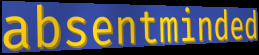
absentminded